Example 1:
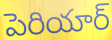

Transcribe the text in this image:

పెరియార్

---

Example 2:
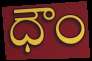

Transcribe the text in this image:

ధౌం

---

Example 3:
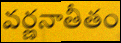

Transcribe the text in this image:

వర్ణనాతీతం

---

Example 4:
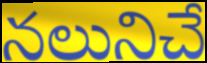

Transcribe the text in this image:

నలునిచే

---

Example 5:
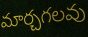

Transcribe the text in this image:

మార్చగలవు